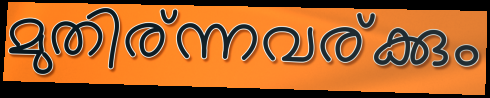
മുതിര്ന്നവര്ക്കും